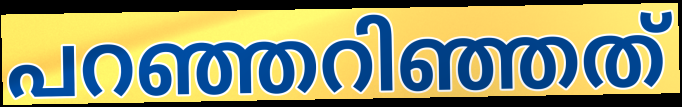
പറഞ്ഞറിഞ്ഞത്